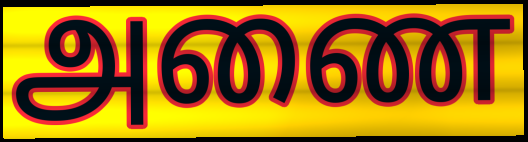
அணை